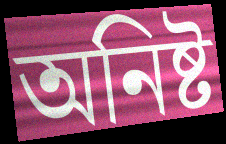
অনিষ্ট